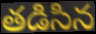
తడిసిన